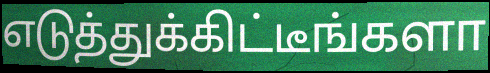
எடுத்துக்கிட்டீங்களா